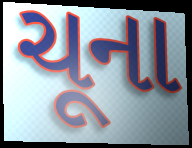
ચૂના